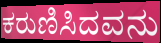
ಕರುಣಿಸಿದವನು